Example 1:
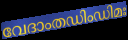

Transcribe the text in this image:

വേദാംതഡിംഡിമഃ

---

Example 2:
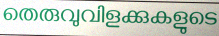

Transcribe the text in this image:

തെരുവുവിളക്കുകളുടെ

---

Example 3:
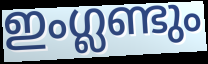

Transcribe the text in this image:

ഇംഗ്ലണ്ടും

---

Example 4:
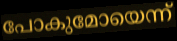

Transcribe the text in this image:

പോകുമോയെന്ന്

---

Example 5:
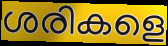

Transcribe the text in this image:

ശരികളെ